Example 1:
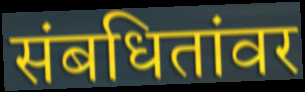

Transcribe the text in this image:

संबधितांवर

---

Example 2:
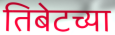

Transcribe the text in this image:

तिबेटच्या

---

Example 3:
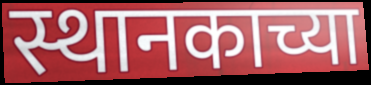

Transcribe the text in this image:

स्थानकाच्या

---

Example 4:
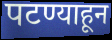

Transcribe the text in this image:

पटण्याहून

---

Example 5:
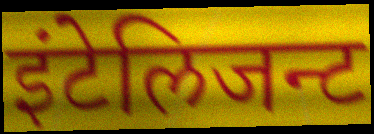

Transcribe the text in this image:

इंटेलिजन्ट